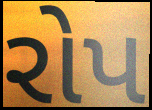
રોપ